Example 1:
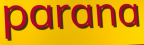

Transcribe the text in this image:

parana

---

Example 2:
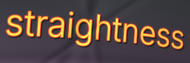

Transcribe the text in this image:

straightness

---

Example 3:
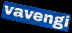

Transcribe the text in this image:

vavengi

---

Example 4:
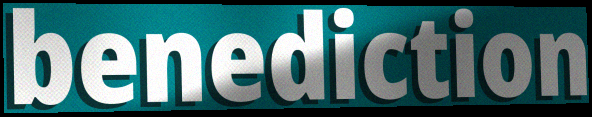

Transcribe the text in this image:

benediction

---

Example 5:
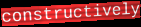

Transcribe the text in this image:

constructively